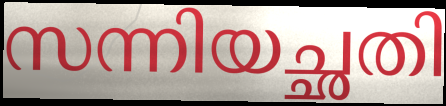
സന്നിയച്ഛതി